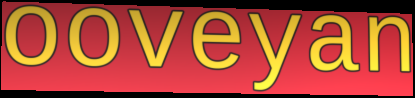
ooveyan